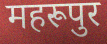
महरूपुर